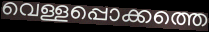
വെള്ളപ്പൊക്കത്തെ